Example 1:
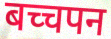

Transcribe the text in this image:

बच्चपन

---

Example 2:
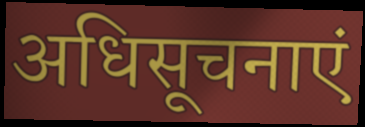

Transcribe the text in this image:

अधिसूचनाएं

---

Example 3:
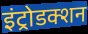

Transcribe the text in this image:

इंट्रोडक्शन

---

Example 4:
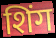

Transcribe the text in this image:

शिंग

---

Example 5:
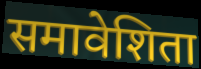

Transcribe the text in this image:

समावेशिता